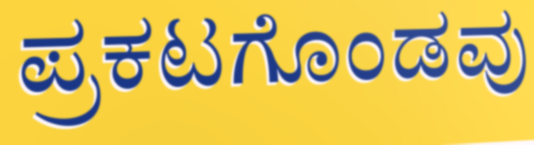
ಪ್ರಕಟಗೊಂಡವು